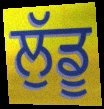
ਲੁੱਡੂ